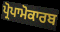
ਪ੍ਰੋਪਾਮੋਕਾਰਬ